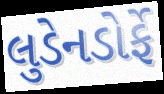
લુડેનડોર્ફે